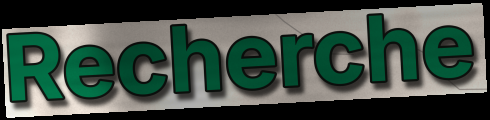
Recherche